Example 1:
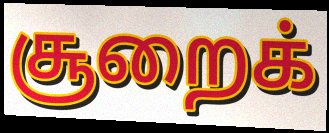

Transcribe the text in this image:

சூறைக்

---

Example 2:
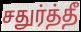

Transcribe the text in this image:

சதுர்த்தீ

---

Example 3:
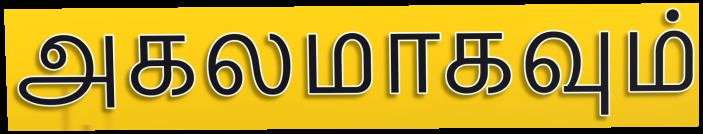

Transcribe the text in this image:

அகலமாகவும்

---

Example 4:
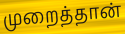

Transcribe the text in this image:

முறைத்தான்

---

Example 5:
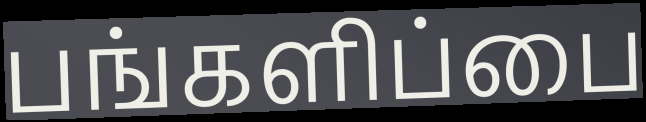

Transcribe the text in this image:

பங்களிப்பை